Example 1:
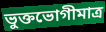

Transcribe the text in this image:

ভুক্তভোগীমাত্র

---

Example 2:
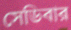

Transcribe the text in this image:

সেডিবার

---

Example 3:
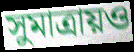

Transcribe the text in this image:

সুমাত্রায়ও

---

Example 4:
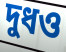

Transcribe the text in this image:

দুধও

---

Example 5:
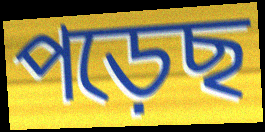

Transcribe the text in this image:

পড়েছ